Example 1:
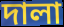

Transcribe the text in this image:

দালা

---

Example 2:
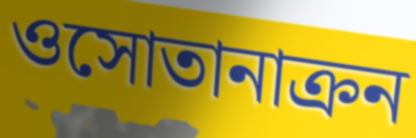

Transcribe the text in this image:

ওসোতানাক্রন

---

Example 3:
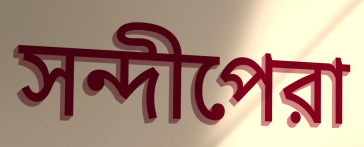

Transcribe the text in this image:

সন্দীপেরা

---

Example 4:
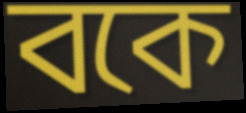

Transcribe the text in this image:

বকে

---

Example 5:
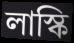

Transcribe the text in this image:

লাস্কি